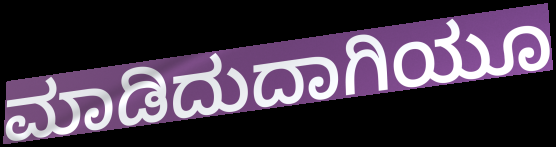
ಮಾಡಿದುದಾಗಿಯೂ